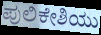
ಪುಲಿಕೇಶಿಯು